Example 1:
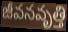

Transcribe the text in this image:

జీవనవృత్తి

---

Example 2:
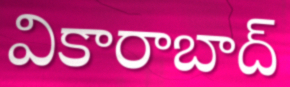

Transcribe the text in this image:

వికారాబాద్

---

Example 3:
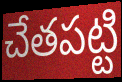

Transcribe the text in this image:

చేతపట్టి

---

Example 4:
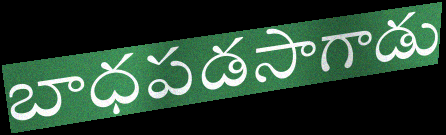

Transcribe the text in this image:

బాధపడసాగాడు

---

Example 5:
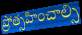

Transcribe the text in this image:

ప్రోత్సహించాల్సి